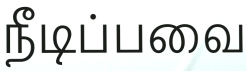
நீடிப்பவை